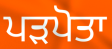
ਪੜਪੋਤਾ